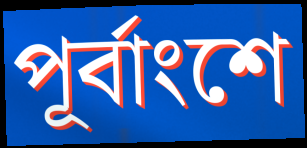
পূর্বাংশে